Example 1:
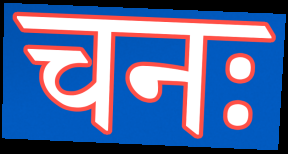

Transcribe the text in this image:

चनः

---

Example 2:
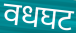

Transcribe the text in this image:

वधघट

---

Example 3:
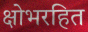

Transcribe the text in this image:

क्षोभरहित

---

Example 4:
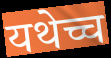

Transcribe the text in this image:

यथेच्च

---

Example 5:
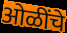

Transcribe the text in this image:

ओळींचे